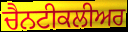
ਚੈਨਟੀਕਲੀਅਰ